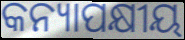
କନ୍ୟାପକ୍ଷୀୟ